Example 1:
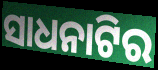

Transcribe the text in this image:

ସାଧନାଟିର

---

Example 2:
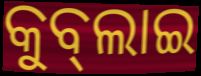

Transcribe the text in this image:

କୁବ୍‌ଲାଇ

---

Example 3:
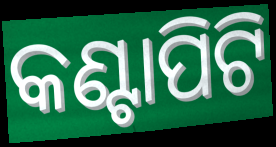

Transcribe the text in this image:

କଣ୍ଟାପିଟି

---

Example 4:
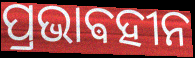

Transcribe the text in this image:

ପ୍ରଭାଵହୀନ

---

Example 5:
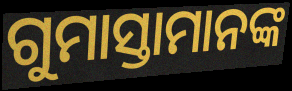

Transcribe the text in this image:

ଗୁମାସ୍ତାମାନଙ୍କ